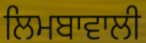
ਲਿਮਬਾਵਾਲੀ